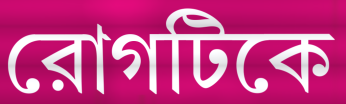
রোগটিকে